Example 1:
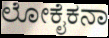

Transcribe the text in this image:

ಲೋಕೈಕನಾ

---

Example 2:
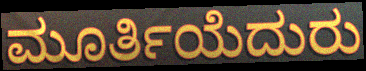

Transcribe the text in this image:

ಮೂರ್ತಿಯೆದುರು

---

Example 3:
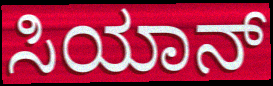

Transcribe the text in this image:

ಸಿಯಾನ್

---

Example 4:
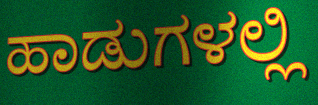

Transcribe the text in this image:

ಹಾಡುಗಳಲ್ಲಿ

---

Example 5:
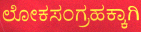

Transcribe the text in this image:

ಲೋಕಸಂಗ್ರಹಕ್ಕಾಗಿ